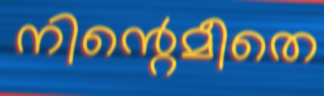
നിന്റെമീതെ